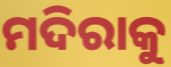
ମଦିରାକୁ